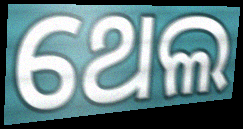
ଥେଲ